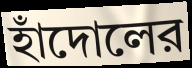
হাঁদোলের